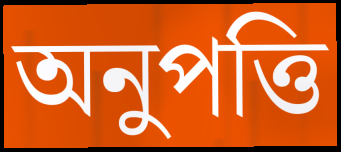
অনুপত্তি